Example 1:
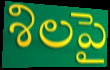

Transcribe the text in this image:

శిలపై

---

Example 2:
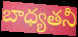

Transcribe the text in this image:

బాధ్యతనీ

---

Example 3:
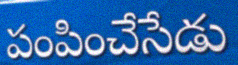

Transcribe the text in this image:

పంపించేసేడు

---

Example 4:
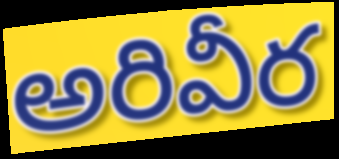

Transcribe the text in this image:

అరివీర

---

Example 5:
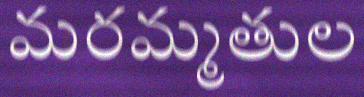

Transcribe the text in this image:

మరమ్మతుల